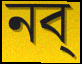
নব্